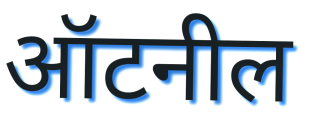
ऑटनील